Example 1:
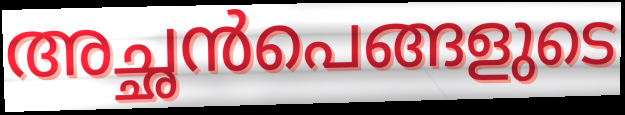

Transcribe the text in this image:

അച്ഛൻപെങ്ങളുടെ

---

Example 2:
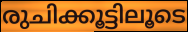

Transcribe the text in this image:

രുചിക്കൂട്ടിലൂടെ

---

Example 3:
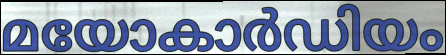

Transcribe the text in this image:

മയോകാർഡിയം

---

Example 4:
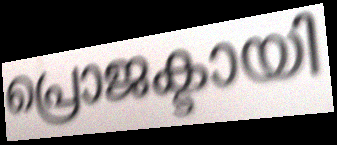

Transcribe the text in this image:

പ്രൊജക്ടായി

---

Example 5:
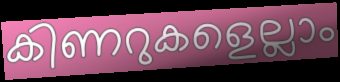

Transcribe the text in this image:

കിണറുകളെല്ലാം